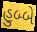
હુબ્બે